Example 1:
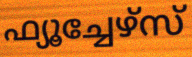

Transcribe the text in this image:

ഫ്യൂച്ചേഴ്സ്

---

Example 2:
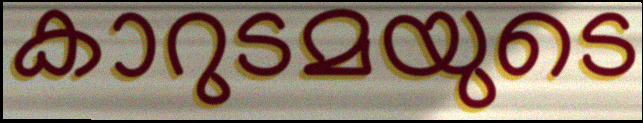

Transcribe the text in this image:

കാറുടമയുടെ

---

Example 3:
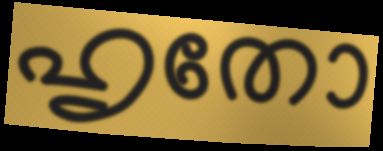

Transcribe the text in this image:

ഹൃതോ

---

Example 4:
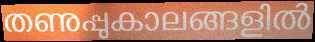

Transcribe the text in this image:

തണുപ്പുകാലങ്ങളിൽ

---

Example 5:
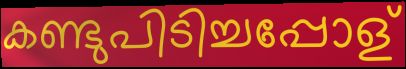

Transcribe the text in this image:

കണ്ടുപിടിച്ചപ്പോള്